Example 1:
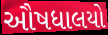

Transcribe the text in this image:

ઔષધાલયો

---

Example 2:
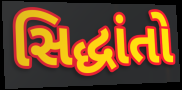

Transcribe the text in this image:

સિદ્ધાંતો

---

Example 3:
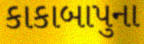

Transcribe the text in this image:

કાકાબાપુના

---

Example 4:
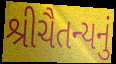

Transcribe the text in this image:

શ્રીચૈતન્યનું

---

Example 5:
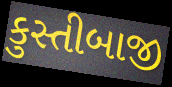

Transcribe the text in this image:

કુસ્તીબાજી